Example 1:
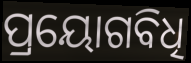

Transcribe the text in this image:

ପ୍ରୟୋଗବିଧି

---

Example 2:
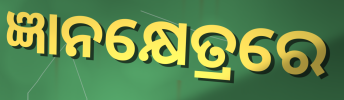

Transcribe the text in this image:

ଜ୍ଞାନକ୍ଷେତ୍ରରେ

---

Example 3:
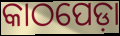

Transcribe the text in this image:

କାଠପେଡ଼ା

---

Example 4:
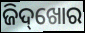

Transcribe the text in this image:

ଜିଦ୍‌ଖୋର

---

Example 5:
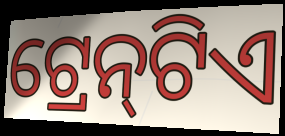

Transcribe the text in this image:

ଟ୍ରେନ୍‌ଟିଏ